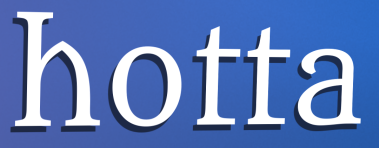
hotta